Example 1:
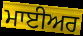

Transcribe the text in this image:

ਮਾਈਅਰ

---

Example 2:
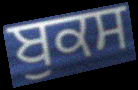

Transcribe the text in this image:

ਬੁਕਸ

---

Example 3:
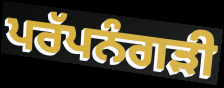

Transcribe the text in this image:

ਪਰੱਪਨੰਗੜੀ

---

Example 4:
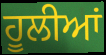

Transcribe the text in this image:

ਹੂਲੀਆਂ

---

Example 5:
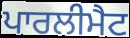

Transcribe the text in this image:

ਪਾਰਲੀਮੈਟ